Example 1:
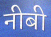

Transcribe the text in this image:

नीबी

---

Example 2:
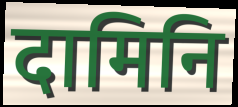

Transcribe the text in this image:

दामिनि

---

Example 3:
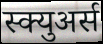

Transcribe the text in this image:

स्क्युअर्स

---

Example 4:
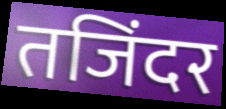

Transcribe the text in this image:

तजिंदर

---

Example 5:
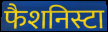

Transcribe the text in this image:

फैशनिस्टा